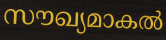
സൗഖ്യമാകൽ